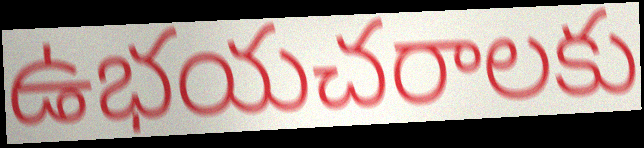
ఉభయచరాలకు